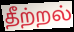
தீற்றல்